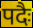
पदैः